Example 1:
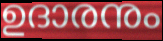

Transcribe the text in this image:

ഉദാരനും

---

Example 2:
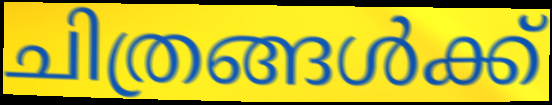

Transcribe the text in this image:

ചിത്രങ്ങൾക്ക്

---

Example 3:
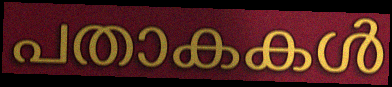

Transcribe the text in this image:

പതാകകൾ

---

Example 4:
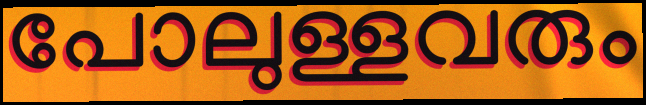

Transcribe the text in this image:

പോലുള്ളവരും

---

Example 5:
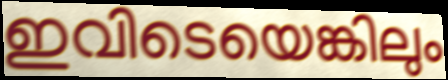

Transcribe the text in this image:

ഇവിടെയെങ്കിലും